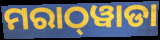
ମରାଠ୍‌ୱାଡା